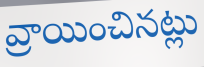
వ్రాయించినట్లు